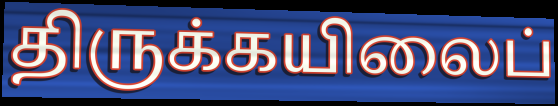
திருக்கயிலைப்